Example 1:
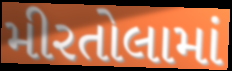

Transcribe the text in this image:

મીરતોલામાં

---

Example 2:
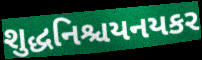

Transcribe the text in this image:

શુદ્ધનિશ્ચયનયકર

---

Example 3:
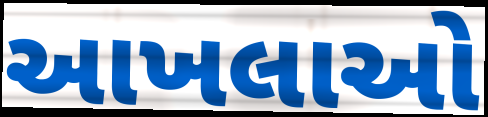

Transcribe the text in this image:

આખલાઓ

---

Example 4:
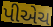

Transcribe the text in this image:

પીએચ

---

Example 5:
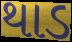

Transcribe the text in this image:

થાડ